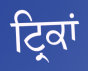
ਟ੍ਰਿਕਾਂ